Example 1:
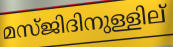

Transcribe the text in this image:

മസ്ജിദിനുള്ളില്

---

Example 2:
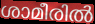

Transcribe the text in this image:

ശാമീരിൽ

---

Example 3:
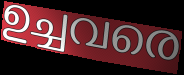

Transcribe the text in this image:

ഉച്ചവരെ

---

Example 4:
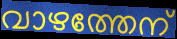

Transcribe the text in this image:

വാഴത്തേന്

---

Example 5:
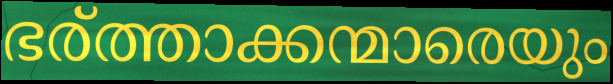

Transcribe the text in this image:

ഭര്ത്താക്കന്മാരെയും